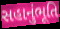
સહાનુંભૂતિ